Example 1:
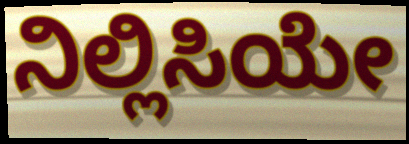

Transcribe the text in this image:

ನಿಲ್ಲಿಸಿಯೇ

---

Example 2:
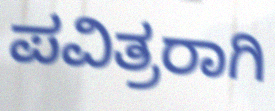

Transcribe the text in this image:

ಪವಿತ್ರರಾಗಿ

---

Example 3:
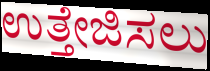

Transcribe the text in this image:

ಉತ್ತೇಜಿಸಲು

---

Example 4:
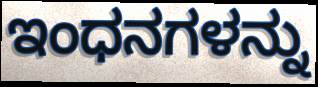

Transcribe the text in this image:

ಇಂಧನಗಳನ್ನು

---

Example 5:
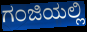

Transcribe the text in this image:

ಗಂಜಿಯಲ್ಲಿ